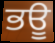
ਭਊ